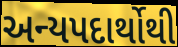
અન્યપદાર્થોથી